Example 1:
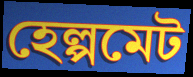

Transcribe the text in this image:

হেল্পমেট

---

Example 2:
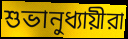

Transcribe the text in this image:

শুভানুধ্যায়ীরা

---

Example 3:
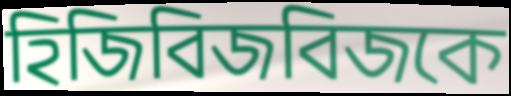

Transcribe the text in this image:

হিজিবিজবিজকে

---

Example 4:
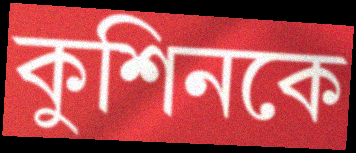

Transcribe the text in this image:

কুশিনকে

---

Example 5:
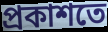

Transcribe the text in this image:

প্রকাশতে